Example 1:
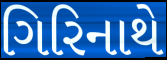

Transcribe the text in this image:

ગિરિનાથે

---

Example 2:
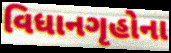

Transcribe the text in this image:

વિધાનગૃહોના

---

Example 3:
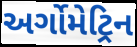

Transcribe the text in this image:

અર્ગોમેટ્રિન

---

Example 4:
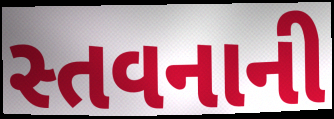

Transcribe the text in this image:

સ્તવનાની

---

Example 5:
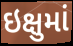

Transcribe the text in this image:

ઇક્ષુમાં